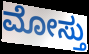
ಮೋಸ್ತು